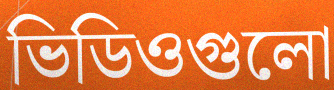
ভিডিওগুলো